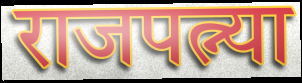
राजपत्न्या